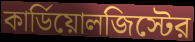
কার্ডিয়োলজিস্টের